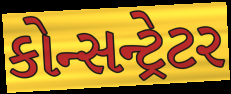
કોન્સન્ટ્રેટર